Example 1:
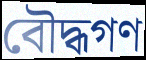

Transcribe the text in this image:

বৌদ্ধগণ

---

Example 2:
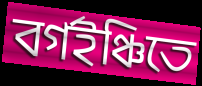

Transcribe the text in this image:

বর্গইঞ্চিতে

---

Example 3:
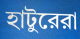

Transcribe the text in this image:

হাটুরেরা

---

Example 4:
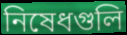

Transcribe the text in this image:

নিষেধগুলি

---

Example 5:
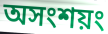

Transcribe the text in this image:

অসংশয়ং